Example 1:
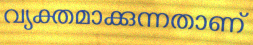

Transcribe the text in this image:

വ്യക്തമാക്കുന്നതാണ്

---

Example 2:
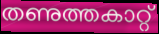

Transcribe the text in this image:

തണുത്തകാറ്റ്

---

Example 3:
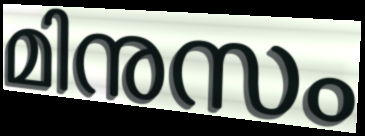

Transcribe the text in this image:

മിനുസം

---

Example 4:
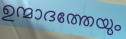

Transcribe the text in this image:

ഉന്മാദത്തേയും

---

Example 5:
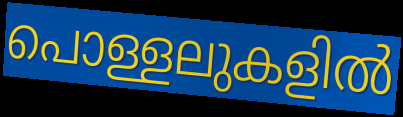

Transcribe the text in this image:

പൊള്ളലുകളിൽ